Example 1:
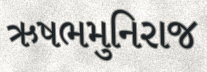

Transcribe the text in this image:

ઋષભમુનિરાજ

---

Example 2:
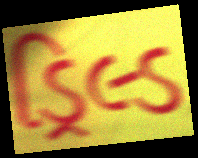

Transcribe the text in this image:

ડ્રિલ્ડ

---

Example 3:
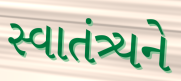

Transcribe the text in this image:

સ્વાતંત્ર્યને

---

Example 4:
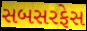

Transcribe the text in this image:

સબસરફેસ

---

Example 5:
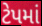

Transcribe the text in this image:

ટેપમાં